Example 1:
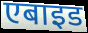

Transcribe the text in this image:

एबाइड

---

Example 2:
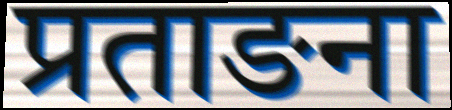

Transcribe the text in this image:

प्रताङना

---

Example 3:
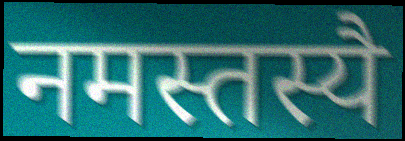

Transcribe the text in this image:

नमस्तस्यै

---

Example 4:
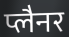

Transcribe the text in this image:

प्लैनर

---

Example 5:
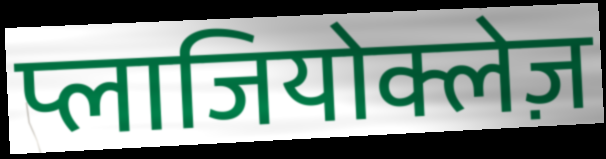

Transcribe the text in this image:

प्लाजियोक्लेज़